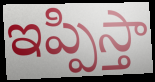
ఇప్పిస్తా